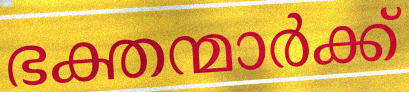
ഭക്തന്മാർക്ക്